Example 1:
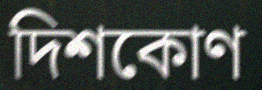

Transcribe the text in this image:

দিশকোণ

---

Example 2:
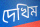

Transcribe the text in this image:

দেখিম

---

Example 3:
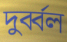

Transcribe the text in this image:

দুৰ্ব্বল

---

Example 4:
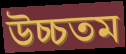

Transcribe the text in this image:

উচ্চতম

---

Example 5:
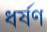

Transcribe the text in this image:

ধৰ্ষণ